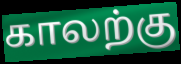
காலற்கு